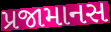
પ્રજામાનસ